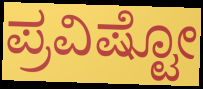
ಪ್ರವಿಷ್ಟೋ